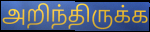
அறிந்திருக்க